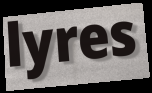
lyres